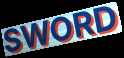
SWORD